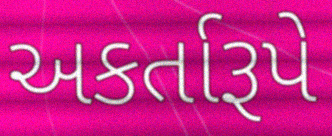
અકર્તારૂપે